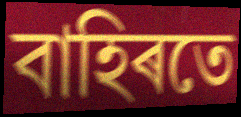
বাহিৰতে